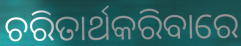
ଚରିତାର୍ଥକରିବାରେ